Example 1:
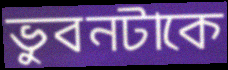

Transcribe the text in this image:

ভুবনটাকে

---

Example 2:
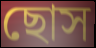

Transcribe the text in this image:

ছোস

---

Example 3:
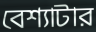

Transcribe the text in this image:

বেশ্যাটার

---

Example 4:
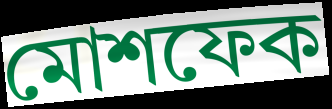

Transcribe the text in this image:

মোশফেক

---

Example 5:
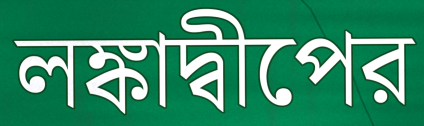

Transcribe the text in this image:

লঙ্কাদ্বীপের